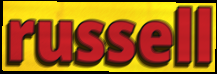
russell